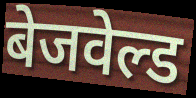
बेजवेल्ड